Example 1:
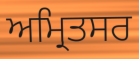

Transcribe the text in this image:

ਅਮ੍ਰਿਤਸਰ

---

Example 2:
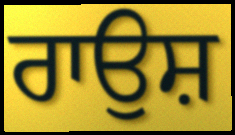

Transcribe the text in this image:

ਰਾਉਸ਼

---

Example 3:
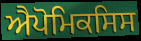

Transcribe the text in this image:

ਐਪੋਮਿਕਸਿਸ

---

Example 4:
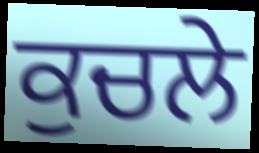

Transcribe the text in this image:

ਕੁਚਲੇ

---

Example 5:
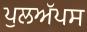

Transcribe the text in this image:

ਪੁਲਅੱਪਸ